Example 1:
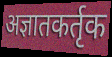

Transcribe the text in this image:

अज्ञातकर्तृक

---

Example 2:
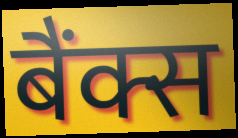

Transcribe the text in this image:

बैंक्स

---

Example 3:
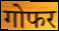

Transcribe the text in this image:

गोफर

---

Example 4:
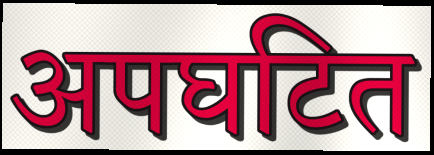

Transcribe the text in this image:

अपघटित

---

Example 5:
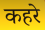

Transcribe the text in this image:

कहरे